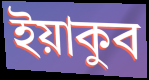
ইয়াকুব